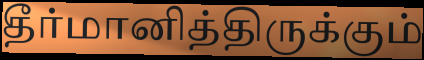
தீர்மானித்திருக்கும்